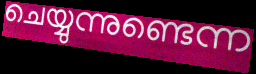
ചെയ്യുന്നുണ്ടെന്ന